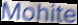
Mohite